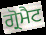
ਗ੍ਰੋਮੈਟ